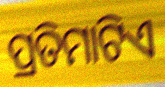
ପ୍ରତିମାଟିଏ